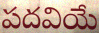
పదవియే